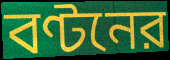
বণ্টনের